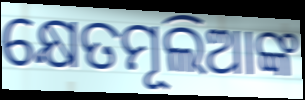
କ୍ଷେତମୂଲିଆଙ୍କ